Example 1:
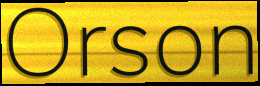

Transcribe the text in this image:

Orson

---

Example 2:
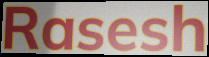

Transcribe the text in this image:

Rasesh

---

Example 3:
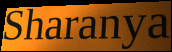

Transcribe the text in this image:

Sharanya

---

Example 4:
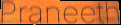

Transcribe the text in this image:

Praneeth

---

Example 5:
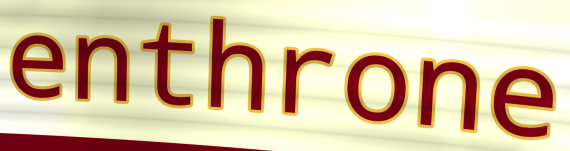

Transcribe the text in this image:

enthrone